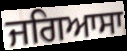
ਜਗਿਆਸਾ